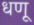
धणू